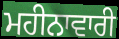
ਮਹੀਨਾਵਾਰੀ